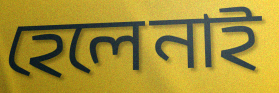
হেলেনাই